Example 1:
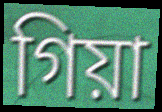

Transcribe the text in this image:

গিয়া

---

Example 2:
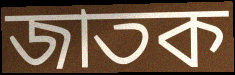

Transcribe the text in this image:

জাতক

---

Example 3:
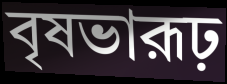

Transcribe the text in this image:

বৃষভারূঢ়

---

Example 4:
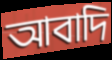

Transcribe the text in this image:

আবাদি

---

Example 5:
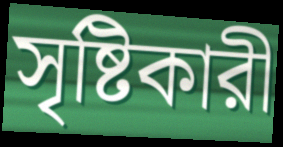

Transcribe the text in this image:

সৃষ্টিকারী